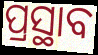
ପ୍ରସ୍ଥାବ